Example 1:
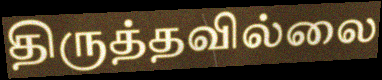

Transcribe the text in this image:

திருத்தவில்லை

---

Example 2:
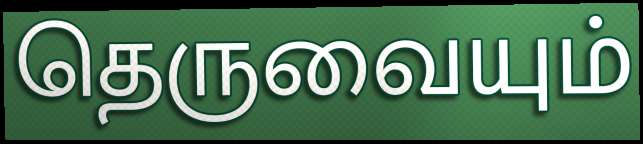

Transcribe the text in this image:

தெருவையும்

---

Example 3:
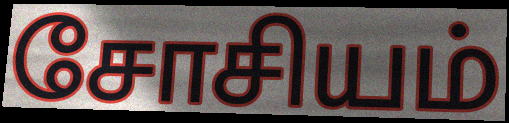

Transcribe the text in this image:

சோசியம்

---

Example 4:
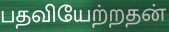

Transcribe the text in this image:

பதவியேற்றதன்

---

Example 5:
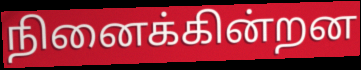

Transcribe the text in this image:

நினைக்கின்றன